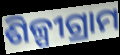
ଶିଳ୍ପୀଗ୍ରାମ